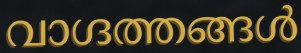
വാഗ്ദത്തങ്ങൾ